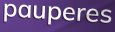
pauperes